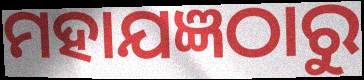
ମହାଯଜ୍ଞଠାରୁ